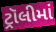
ટ્રૉલીમાં